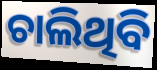
ଚାଲିଥିବି